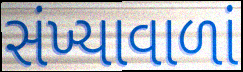
સંખ્યાવાળાં